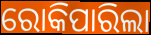
ରୋକିପାରିଲା